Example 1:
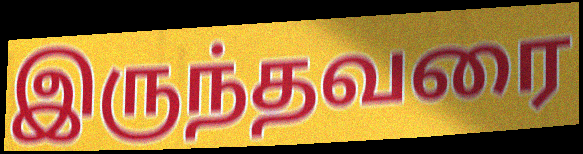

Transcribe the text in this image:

இருந்தவரை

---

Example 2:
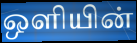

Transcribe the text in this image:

ஒளியின்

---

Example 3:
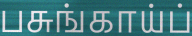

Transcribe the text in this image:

பசுங்காய்ப்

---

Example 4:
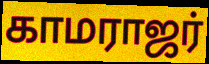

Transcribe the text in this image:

காமராஜர்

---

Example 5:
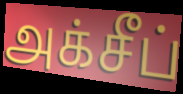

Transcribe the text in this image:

அக்சீப்